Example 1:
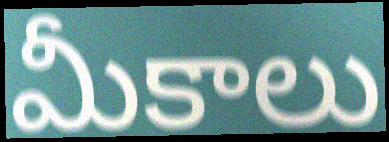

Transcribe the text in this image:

మీకాలు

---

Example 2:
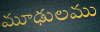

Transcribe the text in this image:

మూఢులము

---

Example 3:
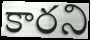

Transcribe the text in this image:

కారని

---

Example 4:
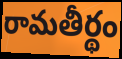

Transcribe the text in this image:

రామతీర్థం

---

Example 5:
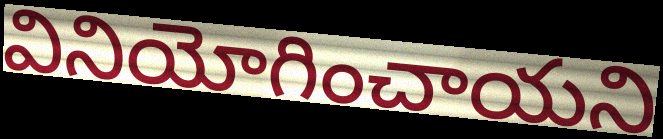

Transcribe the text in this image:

వినియోగించాయని